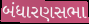
બંધારણસભા